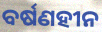
ବର୍ଷଣହୀନ